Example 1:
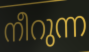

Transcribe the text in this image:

നീറുന്ന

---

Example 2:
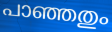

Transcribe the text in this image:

പാഞ്ഞതും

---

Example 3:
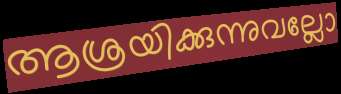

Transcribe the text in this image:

ആശ്രയിക്കുന്നുവല്ലോ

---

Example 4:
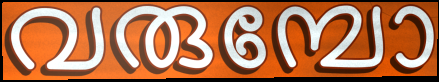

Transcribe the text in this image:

വരുമ്പോ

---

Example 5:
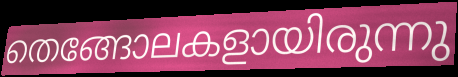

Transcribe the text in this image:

തെങ്ങോലകളായിരുന്നു